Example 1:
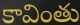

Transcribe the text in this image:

కావింతు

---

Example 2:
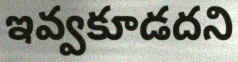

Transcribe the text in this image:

ఇవ్వకూడదని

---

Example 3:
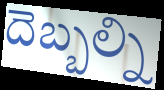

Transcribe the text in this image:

దెబ్బల్ని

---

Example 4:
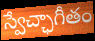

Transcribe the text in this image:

స్వేచ్ఛాగీతం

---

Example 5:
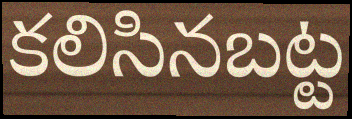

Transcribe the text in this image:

కలిసినబట్ట